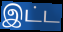
இட்ட